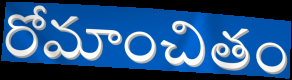
రోమాంచితం